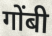
गोंबी